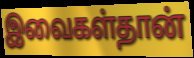
இவைகள்தான்